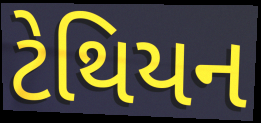
ટેથિયન